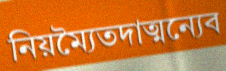
নিয়ম্যৈতদাত্মন্যেব